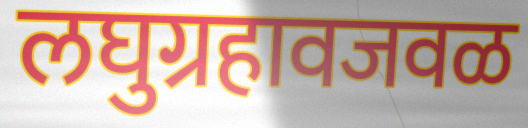
लघुग्रहावजवळ